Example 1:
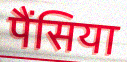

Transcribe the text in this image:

पैंसिया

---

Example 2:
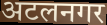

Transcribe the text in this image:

अटलनगर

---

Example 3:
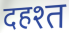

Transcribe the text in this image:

दहश्त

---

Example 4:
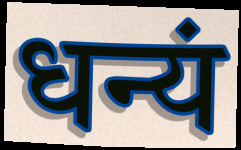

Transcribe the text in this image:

धन्यं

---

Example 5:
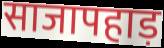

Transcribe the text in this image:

साजापहाड़